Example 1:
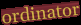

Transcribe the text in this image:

ordinator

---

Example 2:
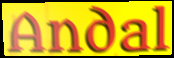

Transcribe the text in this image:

Andal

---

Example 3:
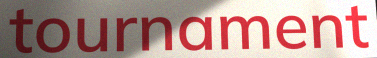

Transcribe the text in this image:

tournament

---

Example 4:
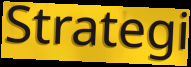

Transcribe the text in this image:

Strategi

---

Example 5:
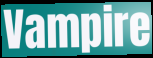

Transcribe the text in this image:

Vampire